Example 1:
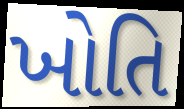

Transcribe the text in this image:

ખોતિ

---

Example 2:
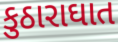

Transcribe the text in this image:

કુઠારાઘાત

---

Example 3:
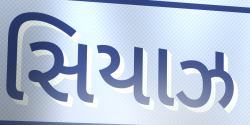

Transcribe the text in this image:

સિયાઝ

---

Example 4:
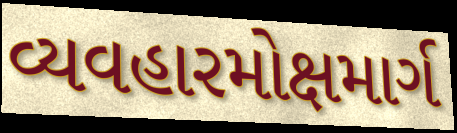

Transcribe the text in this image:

વ્યવહારમોક્ષમાર્ગ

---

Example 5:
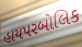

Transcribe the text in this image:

હાયપરબોલિક